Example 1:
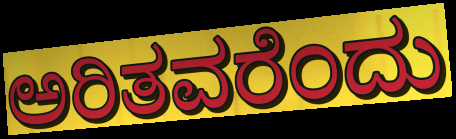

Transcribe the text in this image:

ಅರಿತವರೆಂದು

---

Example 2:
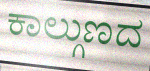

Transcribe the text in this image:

ಕಾಲ್ಗುಣದ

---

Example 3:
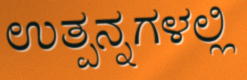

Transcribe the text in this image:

ಉತ್ಪನ್ನಗಳಲ್ಲಿ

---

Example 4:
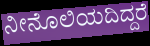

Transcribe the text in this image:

ನೀನೊಲಿಯದಿದ್ದರೆ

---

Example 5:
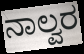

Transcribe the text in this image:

ನಾಲ್ವರ